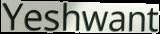
Yeshwant